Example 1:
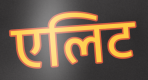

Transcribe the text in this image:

एलिट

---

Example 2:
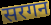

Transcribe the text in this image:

सरगन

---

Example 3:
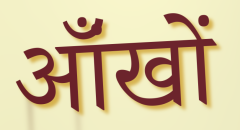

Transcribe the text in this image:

आंँखों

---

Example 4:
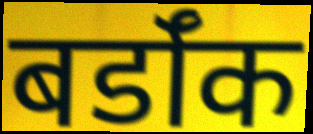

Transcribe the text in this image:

बर्डॉक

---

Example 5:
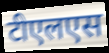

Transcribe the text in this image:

टीएलएस